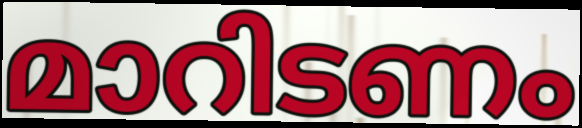
മാറിടണം